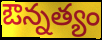
ఔన్నత్యం